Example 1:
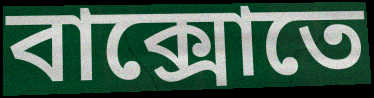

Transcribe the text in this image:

বাক্সোতে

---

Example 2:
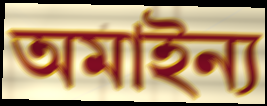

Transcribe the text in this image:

অমাইন্য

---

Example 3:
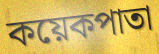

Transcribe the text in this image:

কয়েকপাতা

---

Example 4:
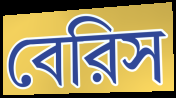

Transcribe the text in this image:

বেরিস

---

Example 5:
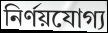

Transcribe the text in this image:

নির্ণয়যোগ্য